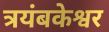
त्रयंबकेश्वर